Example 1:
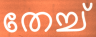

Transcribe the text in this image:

തേച്ച്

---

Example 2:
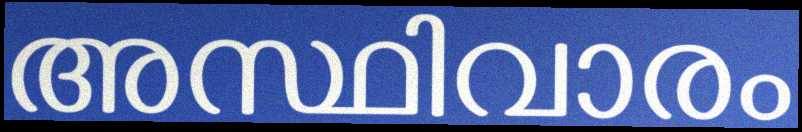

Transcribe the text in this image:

അസ്ഥിവാരം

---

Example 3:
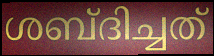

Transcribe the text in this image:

ശബ്ദിച്ചത്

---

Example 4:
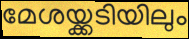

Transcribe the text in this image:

മേശയ്ക്കടിയിലും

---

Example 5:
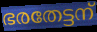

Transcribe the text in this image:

ഭരതേട്ടന്